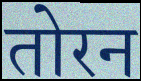
तोरन